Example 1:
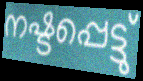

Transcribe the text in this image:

നഷ്ടപ്പെട്ടു്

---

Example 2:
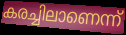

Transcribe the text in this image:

കരച്ചിലാണെന്ന്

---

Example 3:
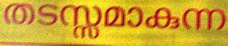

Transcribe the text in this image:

തടസ്സമാകുന്ന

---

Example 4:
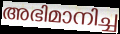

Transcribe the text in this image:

അഭിമാനിച്ച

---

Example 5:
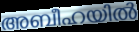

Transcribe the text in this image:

അബീഹയിൽ